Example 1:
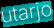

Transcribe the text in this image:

utarjo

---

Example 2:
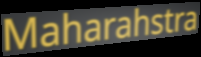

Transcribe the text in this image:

Maharahstra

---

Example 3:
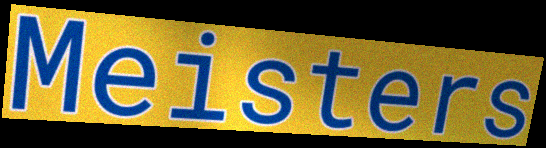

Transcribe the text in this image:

Meisters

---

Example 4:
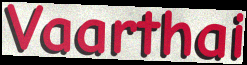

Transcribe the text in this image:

Vaarthai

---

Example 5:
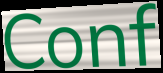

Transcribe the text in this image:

Conf